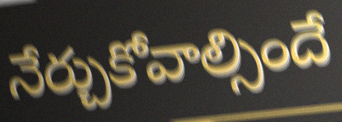
నేర్చుకోవాల్సిందే